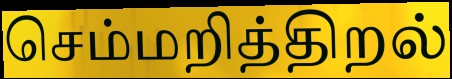
செம்மறித்திறல்